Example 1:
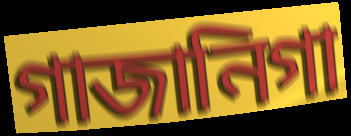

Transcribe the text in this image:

গাজানিগা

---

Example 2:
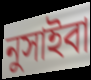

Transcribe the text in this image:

নুসাইবা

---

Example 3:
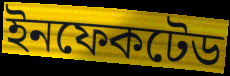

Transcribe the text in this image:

ইনফেকটেড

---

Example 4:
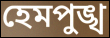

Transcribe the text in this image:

হেমপুঙ্খ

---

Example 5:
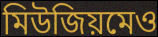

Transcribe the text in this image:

মিউজিয়মেও